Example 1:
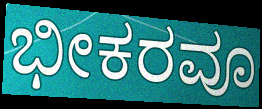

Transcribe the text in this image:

ಭೀಕರವೂ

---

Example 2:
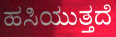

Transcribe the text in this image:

ಹಸಿಯುತ್ತದೆ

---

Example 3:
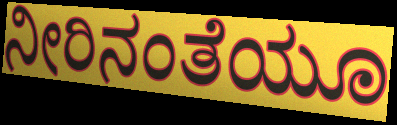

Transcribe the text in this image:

ನೀರಿನಂತೆಯೂ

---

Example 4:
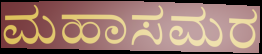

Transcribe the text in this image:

ಮಹಾಸಮರ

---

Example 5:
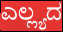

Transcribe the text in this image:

ಎಲ್ಲ್ಯದ